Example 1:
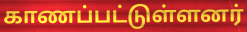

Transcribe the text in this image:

காணப்பட்டுள்ளனர்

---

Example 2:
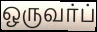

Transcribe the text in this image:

ஒருவர்ப்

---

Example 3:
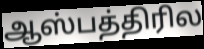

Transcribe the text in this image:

ஆஸ்பத்திரில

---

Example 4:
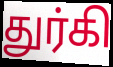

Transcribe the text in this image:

துர்கி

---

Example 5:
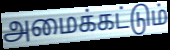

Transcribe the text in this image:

அமைக்கட்டும்